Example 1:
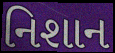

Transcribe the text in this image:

નિશાન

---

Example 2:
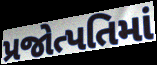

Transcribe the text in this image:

પ્રજોત્પતિમાં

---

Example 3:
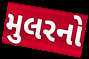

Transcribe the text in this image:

મુલરનો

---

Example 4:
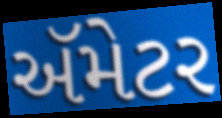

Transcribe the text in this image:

ઍમેટર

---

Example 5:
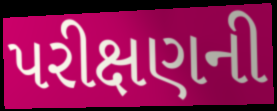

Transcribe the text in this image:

પરીક્ષણની